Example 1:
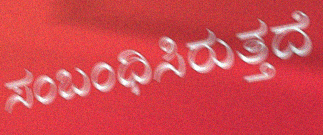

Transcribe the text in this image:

ಸಂಬಂಧಿಸಿರುತ್ತದೆ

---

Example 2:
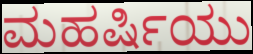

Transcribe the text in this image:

ಮಹರ್ಷಿಯು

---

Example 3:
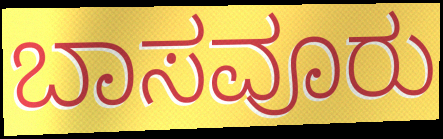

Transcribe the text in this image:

ಬಾಸವೂರು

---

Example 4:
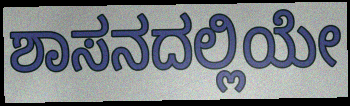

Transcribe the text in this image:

ಶಾಸನದಲ್ಲಿಯೇ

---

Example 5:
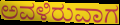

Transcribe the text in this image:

ಅವಳಿರುವಾಗ